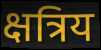
क्षत्रिय